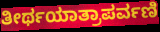
ತೀರ್ಥಯಾತ್ರಾಪರ್ವಣಿ